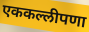
एककल्लीपणा